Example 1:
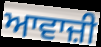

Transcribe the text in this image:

ਆਵਾਜ਼ੀ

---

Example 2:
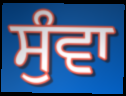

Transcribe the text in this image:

ਸੁੰਵਾ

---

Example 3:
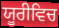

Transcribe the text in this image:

ਯੂਰੀਵਿਚ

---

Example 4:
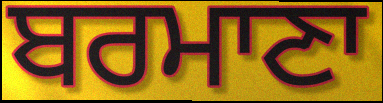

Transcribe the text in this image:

ਬਰਮਾਣਾ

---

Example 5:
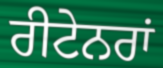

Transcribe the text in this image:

ਰੀਟੇਨਰਾਂ